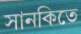
সানকিতে